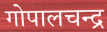
गोपालचन्द्र